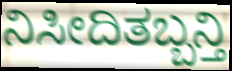
ನಿಸೀದಿತಬ್ಬನ್ತಿ